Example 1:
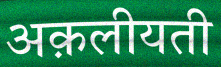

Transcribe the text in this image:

अक़लीयती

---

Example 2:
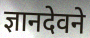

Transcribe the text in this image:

ज्ञानदेवने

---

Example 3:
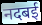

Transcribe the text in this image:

नदबई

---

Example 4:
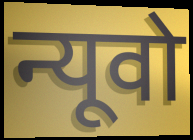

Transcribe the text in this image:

न्यूवो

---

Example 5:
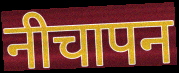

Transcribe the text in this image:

नीचापन